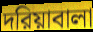
দরিয়াবালা